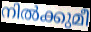
നിൽക്കുമീ